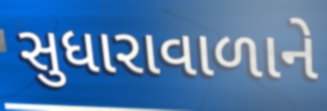
સુધારાવાળાને